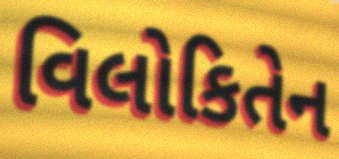
વિલોકિતેન